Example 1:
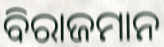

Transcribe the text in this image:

ବିରାଜମାନ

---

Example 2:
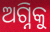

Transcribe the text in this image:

ଅଗ୍ନିକୁ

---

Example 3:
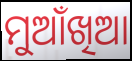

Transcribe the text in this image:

ମୁଆଁଖିଆ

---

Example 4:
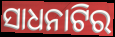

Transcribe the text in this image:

ସାଧନାଟିର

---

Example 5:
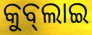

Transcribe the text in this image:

କୁବ୍‌ଲାଇ